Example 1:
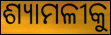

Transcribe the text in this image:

ଶ୍ୟାମଳୀକୁ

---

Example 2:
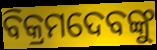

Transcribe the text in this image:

ବିକ୍ରମଦେବଙ୍କୁ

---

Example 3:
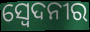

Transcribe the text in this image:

ସ୍ୱେଦନୀର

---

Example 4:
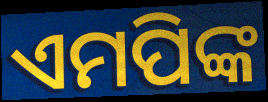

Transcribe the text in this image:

ଏମପିଙ୍କ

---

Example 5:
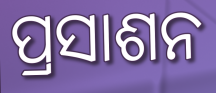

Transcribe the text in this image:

ପ୍ରସାଶନ